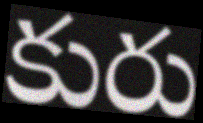
కురు